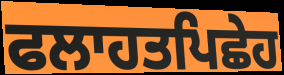
ਫਲਾਹਤਪਿਛੇਹ